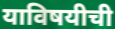
याविषयीची